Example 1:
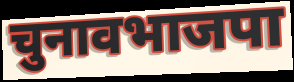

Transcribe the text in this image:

चुनावभाजपा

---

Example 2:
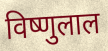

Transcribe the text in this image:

विष्णुलाल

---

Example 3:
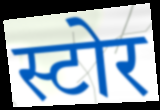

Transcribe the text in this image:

स्टोर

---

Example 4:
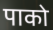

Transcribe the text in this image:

पाको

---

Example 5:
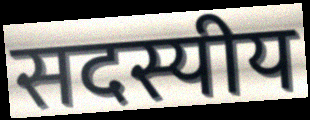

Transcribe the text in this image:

सदस्यीय